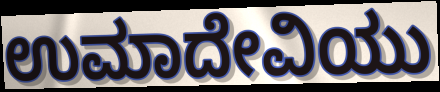
ಉಮಾದೇವಿಯು